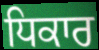
ਧਿਕਾਰ